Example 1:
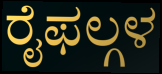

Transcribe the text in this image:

ರೈಫಲ್ಗಳ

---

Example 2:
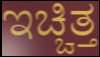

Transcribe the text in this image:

ಇಚ್ಚಿತ್ತ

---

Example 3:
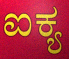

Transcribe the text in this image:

ಐಕ್ಯ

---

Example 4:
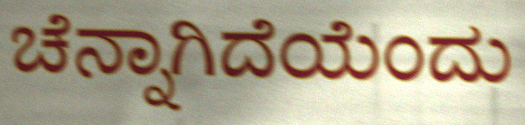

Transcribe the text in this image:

ಚೆನ್ನಾಗಿದೆಯೆಂದು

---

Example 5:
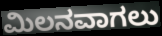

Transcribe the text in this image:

ಮಿಲನವಾಗಲು